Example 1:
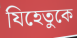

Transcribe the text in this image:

যিহেতুকে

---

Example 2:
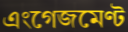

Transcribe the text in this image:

এংগেজমেণ্ট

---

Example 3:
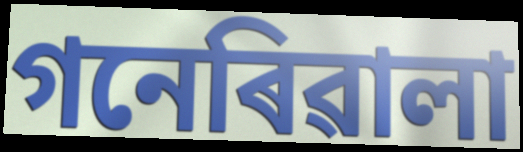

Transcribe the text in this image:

গনেৰিৱালা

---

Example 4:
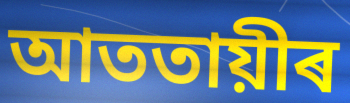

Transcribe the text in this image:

আততায়ীৰ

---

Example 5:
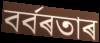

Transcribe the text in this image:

বৰ্বৰতাৰ